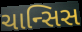
ચાન્સિસ